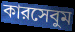
কারসেবুম